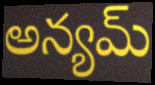
అన్యమ్